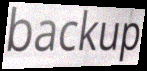
backup